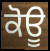
ਕੋਊ